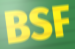
BSF